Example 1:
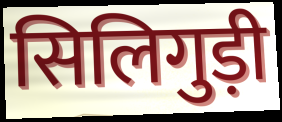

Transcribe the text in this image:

सिलिगुड़ी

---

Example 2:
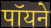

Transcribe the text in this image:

पॉयने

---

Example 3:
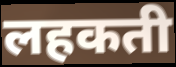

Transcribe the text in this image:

लहकती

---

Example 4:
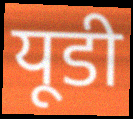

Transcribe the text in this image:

यूडी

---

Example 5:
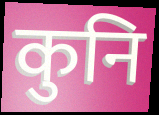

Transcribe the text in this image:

कुनि